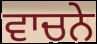
ਵਾਚਨੇ